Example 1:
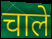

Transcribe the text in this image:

चाले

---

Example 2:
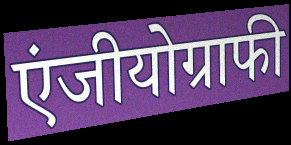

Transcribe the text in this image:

एंजीयोग्राफी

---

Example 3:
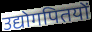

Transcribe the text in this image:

उद्योगपितयों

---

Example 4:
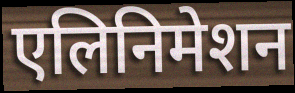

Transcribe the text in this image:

एलिनिमेशन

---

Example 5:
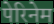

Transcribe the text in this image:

पेरिनेम